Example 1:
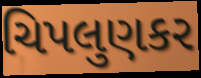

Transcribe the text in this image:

ચિપલુણકર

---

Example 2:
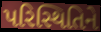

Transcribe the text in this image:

પરિસ્થિતિને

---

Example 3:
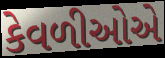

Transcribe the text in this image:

કેવળીઓએ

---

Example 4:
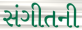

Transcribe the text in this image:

સંગીતની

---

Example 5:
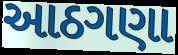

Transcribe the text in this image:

આઠગણા